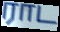
ராட